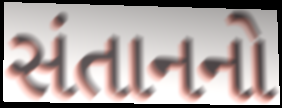
સંતાનનો